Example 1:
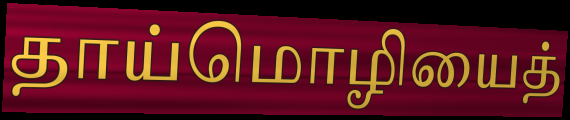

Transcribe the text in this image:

தாய்மொழியைத்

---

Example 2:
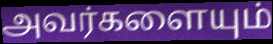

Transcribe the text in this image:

அவர்களையும்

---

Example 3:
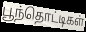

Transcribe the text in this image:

பூந்தொட்டிகள்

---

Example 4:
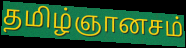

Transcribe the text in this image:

தமிழ்ஞானசம்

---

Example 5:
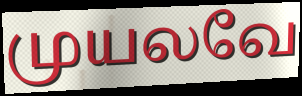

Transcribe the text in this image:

முயலவே